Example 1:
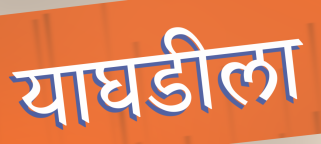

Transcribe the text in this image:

याघडीला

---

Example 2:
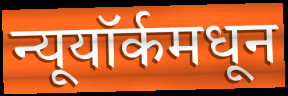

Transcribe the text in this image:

न्यूयॉर्कमधून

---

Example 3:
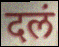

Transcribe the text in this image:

दलं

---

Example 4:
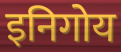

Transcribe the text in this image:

इनिगोय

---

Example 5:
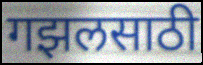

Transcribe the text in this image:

गझलसाठी